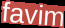
favim